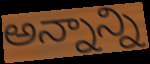
అన్నాన్ని